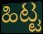
ಹಿಟ್ಟ